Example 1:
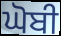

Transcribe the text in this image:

ਘੋਬੀ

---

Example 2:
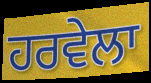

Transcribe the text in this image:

ਹਰਵੇਲਾ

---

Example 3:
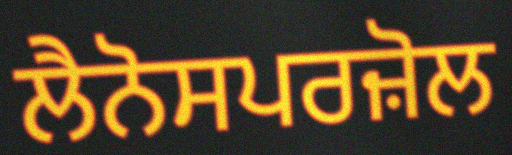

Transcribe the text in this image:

ਲੈਨੋਸਪਰਜ਼ੋਲ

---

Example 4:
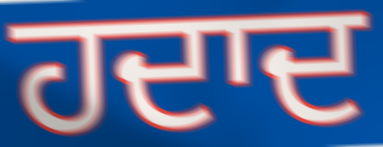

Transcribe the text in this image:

ਹਦਾਦ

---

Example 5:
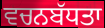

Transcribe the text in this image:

ਵਚਨਬੱਧਤਾ